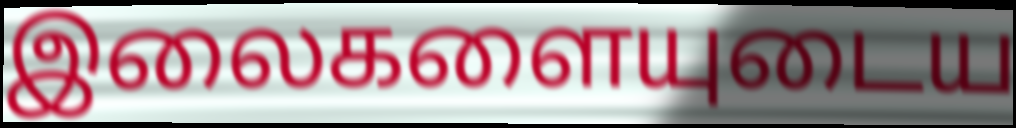
இலைகளையுடைய